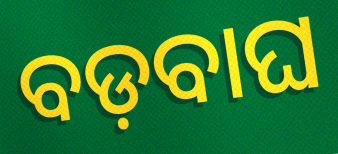
ବଡ଼ବାଘ